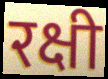
रक्षी